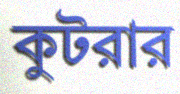
কুটরার